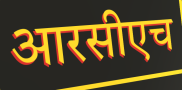
आरसीएच